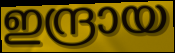
ഇന്ദ്രായ